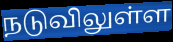
நடுவிலுள்ள